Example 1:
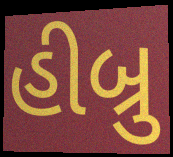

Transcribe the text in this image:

હીબ્રુ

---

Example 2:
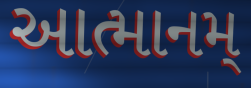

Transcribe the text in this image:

આત્માનમ્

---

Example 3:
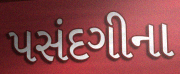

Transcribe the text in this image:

પસંદગીના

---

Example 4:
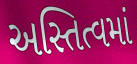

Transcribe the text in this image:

અસ્તિત્વમાં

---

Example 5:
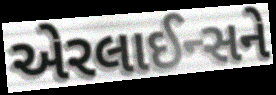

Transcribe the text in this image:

એરલાઈન્સને